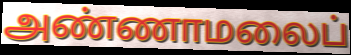
அண்ணாமலைப்